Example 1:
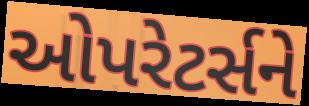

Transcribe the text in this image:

ઓપરેટર્સને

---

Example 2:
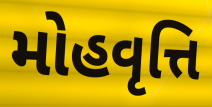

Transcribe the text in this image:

મોહવૃત્તિ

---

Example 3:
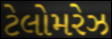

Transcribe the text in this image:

ટેલોમરેઝ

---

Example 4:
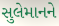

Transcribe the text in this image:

સુલેમાનને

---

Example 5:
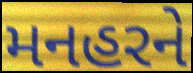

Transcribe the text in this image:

મનહરને